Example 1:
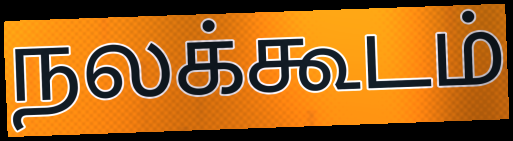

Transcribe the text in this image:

நலக்கூடம்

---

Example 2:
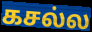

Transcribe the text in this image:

கசல்ல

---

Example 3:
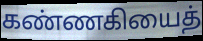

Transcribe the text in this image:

கண்ணகியைத்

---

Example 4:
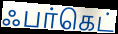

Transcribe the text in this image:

ஃபர்கெட்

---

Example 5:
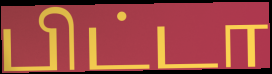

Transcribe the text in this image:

பிட்டா